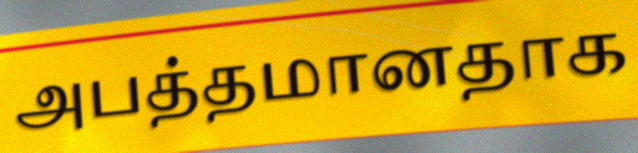
அபத்தமானதாக